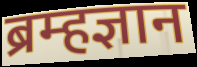
ब्रम्हज्ञान